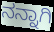
ನನ್ನಾಗಿ